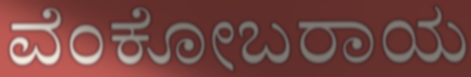
ವೆಂಕೋಬರಾಯ